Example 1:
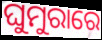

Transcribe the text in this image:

ଘୁମୁରାରେ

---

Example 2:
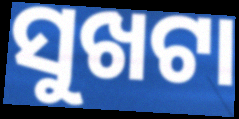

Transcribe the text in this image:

ସୁଖଟା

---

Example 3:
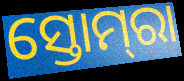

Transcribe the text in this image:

ସ୍ତୋମ୍‌ରା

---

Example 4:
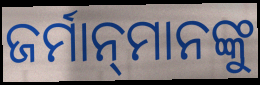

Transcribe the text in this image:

ଜର୍ମାନ୍‌ମାନଙ୍କୁ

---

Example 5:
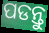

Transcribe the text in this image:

ପଡନ୍ତୁ